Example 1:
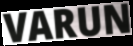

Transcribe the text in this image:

VARUN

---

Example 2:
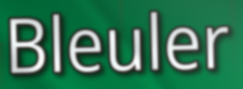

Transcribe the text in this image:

Bleuler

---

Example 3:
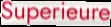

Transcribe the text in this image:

Superieure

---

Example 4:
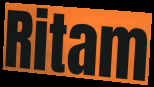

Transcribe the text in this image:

Ritam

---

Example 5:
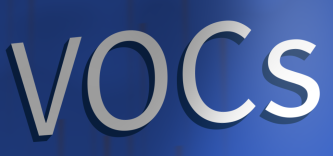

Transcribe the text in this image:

VOCs